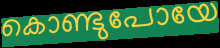
കൊണ്ടുപോയേ